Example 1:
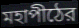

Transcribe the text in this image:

মহাপীঠের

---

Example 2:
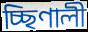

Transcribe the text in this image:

চ্ছিণালী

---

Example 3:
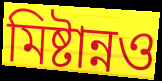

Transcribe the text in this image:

মিষ্টান্নও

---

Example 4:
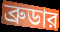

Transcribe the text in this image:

ব্রুডার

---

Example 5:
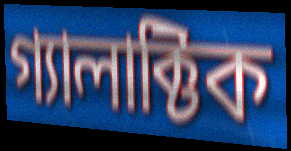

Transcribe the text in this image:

গ্যালাক্টিক